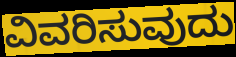
ವಿವರಿಸುವುದು